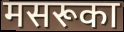
मसरूका